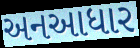
અનઆધાર